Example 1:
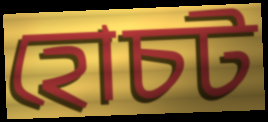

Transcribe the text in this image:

হোচট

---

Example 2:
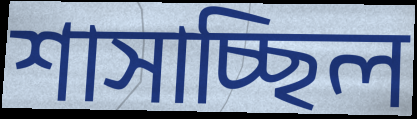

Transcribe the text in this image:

শাসাচ্ছিল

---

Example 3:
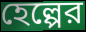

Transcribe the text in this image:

হেল্পের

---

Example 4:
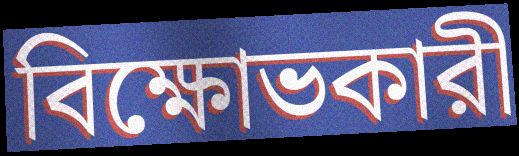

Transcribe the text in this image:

বিক্ষোভকারী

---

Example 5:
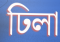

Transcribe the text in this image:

ঢিলা